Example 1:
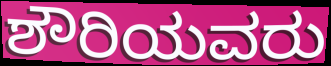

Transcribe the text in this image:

ಶೌರಿಯವರು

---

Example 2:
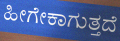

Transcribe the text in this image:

ಹೀಗೇಕಾಗುತ್ತದೆ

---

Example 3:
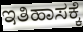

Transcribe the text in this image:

ಇತಿಹಾಸಕ್ಕೆ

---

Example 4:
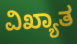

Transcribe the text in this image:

ವಿಖ್ಯಾತ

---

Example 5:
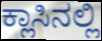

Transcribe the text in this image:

ಕ್ಲಾಸಿನಲ್ಲಿ